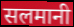
सलमानी